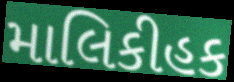
માલિકીહક